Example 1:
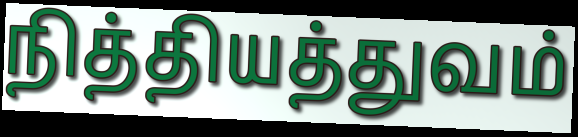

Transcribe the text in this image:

நித்தியத்துவம்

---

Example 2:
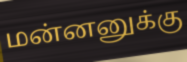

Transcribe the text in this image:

மன்னனுக்கு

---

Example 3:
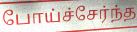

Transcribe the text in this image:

போய்ச்சேர்ந்த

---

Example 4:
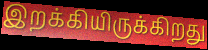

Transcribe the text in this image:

இறக்கியிருக்கிறது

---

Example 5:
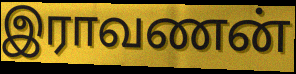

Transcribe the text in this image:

இராவணன்